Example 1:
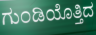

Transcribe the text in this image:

ಗುಂಡಿಯೊತ್ತಿದ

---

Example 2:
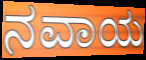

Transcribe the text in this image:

ನವಾಯ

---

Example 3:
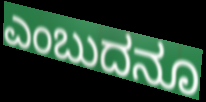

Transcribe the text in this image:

ಎಂಬುದನೂ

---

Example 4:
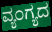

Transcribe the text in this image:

ವ್ಯಂಗ್ಯದ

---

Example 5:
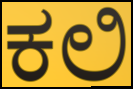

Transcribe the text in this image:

ಕಲಿ